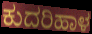
ಕುದರಿಹಾಳ